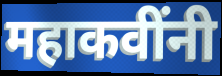
महाकवींनी